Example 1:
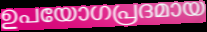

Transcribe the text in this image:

ഉപയോഗപ്രദമായ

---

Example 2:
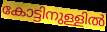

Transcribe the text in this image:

കോട്ടിനുള്ളിൽ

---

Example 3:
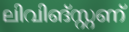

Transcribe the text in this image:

ലിവിങ്സ്റ്റണ്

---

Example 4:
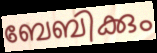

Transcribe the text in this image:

ബേബിക്കും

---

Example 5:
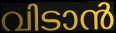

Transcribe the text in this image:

വിടാൻ